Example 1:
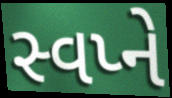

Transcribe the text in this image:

સ્વપ્ને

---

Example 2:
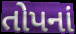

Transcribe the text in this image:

તોપનાં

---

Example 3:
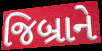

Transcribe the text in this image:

જિબ્રાને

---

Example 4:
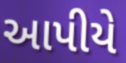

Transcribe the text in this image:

આપીયે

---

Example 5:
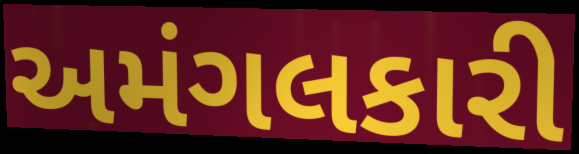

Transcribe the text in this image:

અમંગલકારી